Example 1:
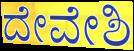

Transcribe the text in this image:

ದೇವೇಶಿ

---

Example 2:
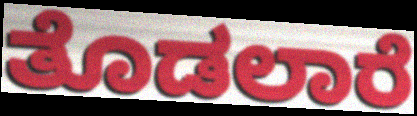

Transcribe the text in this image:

ತೊಡಲಾರೆ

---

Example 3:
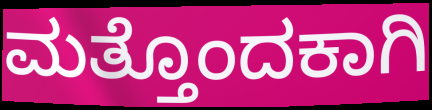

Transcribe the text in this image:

ಮತ್ತೊಂದಕಾಗಿ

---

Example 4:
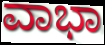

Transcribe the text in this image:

ವಾಭಾ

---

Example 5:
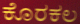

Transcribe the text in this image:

ಕೊರಕಲ